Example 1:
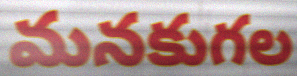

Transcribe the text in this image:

మనకుగల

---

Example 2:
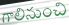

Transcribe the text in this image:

గాలినుంచి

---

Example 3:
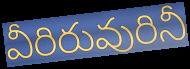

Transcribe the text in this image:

వీరిరువురినీ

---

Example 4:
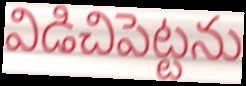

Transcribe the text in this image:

విడిచిపెట్టను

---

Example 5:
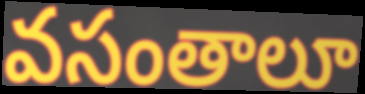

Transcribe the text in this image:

వసంతాలూ